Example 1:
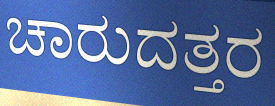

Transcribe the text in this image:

ಚಾರುದತ್ತರ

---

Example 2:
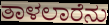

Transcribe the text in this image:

ತಾಳಲಾರೆನು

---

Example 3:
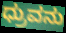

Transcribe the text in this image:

ಧ್ರುವನು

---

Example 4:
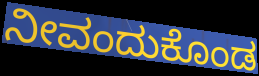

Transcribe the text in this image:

ನೀವಂದುಕೊಂಡ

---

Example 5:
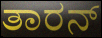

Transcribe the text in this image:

ತಾರನ್